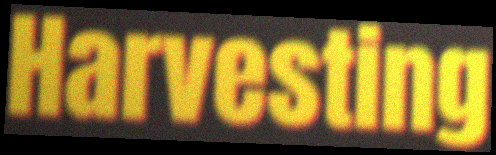
Harvesting